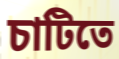
চাটিতে